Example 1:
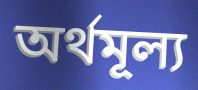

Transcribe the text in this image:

অর্থমূল্য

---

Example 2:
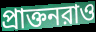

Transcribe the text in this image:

প্রাক্তনরাও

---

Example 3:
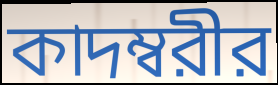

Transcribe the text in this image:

কাদম্বরীর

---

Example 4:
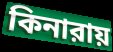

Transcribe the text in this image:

কিনারায়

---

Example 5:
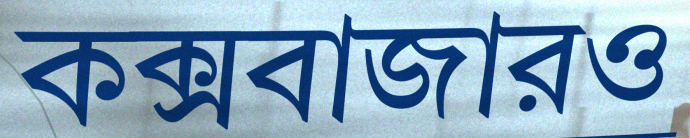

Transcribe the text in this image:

কক্সবাজারও